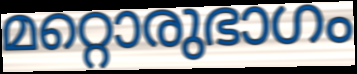
മറ്റൊരുഭാഗം